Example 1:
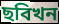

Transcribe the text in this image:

ছবিখন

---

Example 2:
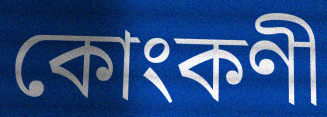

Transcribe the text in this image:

কোংকণী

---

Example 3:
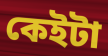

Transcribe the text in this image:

কেইটা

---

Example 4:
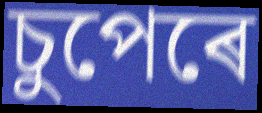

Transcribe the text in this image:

চুপেৰে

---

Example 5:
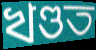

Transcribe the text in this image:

খণ্ডত